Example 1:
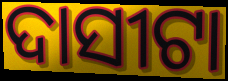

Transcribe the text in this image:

ଦାସୀଟା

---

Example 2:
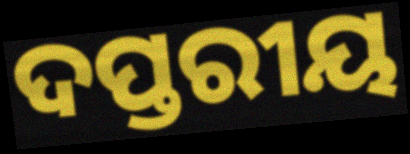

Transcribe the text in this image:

ଦପ୍ତରୀୟ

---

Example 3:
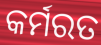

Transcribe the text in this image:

କର୍ମରତ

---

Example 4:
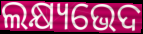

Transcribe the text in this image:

ଲକ୍ଷ୍ୟଭେଦ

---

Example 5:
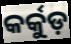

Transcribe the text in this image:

କର୍କୁଡ଼